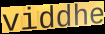
viddhe